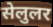
सेलुलर